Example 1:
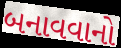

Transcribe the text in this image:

બનાવવાનો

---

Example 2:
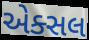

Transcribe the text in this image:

એક્સલ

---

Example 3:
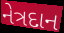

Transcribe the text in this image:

નેત્રદાન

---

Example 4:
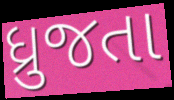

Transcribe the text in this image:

ધ્રુજતા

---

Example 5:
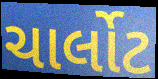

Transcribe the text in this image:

ચાર્લોટ